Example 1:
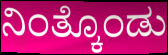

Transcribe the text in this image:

ನಿಂತ್ಕೊಂಡು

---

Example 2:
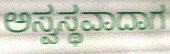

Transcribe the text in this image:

ಅಸ್ವಸ್ಥವಾದಾಗ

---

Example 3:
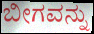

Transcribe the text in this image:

ಬೀಗವನ್ನು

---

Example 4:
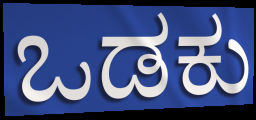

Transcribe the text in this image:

ಒಡಕು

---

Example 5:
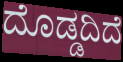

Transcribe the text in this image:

ದೊಡ್ಡದಿದೆ